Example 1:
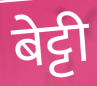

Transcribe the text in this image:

बेट्टी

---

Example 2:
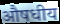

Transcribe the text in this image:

औषधीय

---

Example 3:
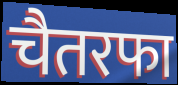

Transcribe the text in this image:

चैतरफा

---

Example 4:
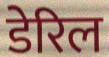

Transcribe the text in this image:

डेरिल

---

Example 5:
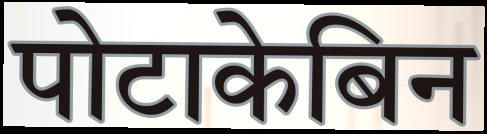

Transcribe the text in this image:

पोटाकेबिन